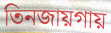
তিনজায়গায়